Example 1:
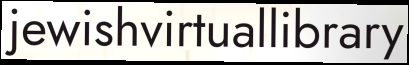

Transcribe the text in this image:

jewishvirtuallibrary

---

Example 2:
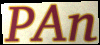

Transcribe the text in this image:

PAn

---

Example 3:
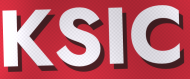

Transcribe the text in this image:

KSIC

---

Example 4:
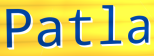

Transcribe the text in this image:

Patla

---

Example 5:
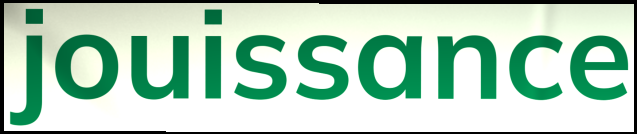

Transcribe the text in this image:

jouissance